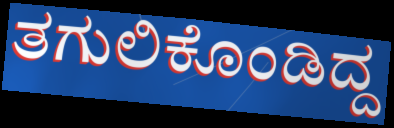
ತಗುಲಿಕೊಂಡಿದ್ದ